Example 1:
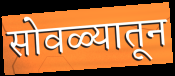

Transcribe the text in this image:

सोवळ्यातून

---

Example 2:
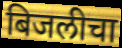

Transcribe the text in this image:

बिजलीचा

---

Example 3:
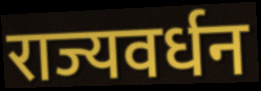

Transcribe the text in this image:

राज्यवर्धन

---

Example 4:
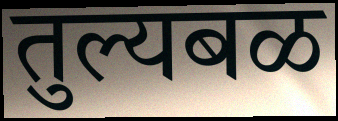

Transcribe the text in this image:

तुल्यबळ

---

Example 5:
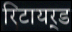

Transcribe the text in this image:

रिटायर्ड